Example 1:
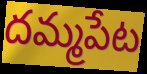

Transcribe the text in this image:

దమ్మపేట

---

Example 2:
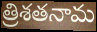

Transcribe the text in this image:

త్రిశతనామ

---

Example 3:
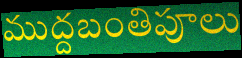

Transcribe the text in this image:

ముద్దబంతిపూలు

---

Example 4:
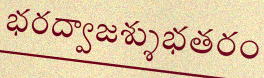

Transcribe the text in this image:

భరద్వాజశ్శుభతరం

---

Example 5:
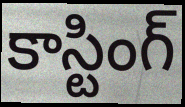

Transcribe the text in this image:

కాస్టింగ్